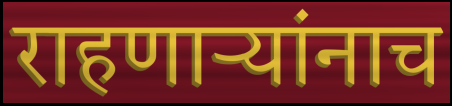
राहणाऱ्यांनाच